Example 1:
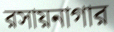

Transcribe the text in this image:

রসায়নাগার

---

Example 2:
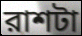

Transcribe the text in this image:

রাশটা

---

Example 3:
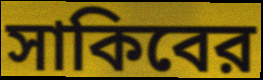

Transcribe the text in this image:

সাকিবের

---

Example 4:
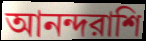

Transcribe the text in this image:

আনন্দরাশি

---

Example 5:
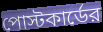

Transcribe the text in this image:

পোস্টকার্ডের